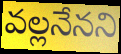
వల్లనేనని